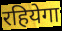
रहियेगा